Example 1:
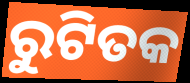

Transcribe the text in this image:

ରୁଟିତକ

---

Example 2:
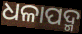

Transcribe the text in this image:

ଧଳାପଦ୍ମ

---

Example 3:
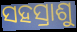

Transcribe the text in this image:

ସହସ୍ରାଶୁ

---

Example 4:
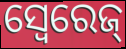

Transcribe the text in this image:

ସ୍ବେରେଜ୍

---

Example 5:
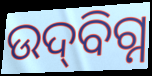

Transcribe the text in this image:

ଉଦ୍‍ବିଗ୍ନ